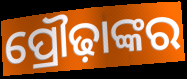
ପ୍ରୌଢ଼ାଙ୍କର